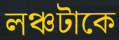
লঞ্চটাকে